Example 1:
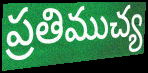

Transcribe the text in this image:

ప్రతిముచ్య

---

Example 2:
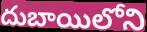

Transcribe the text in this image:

దుబాయిలోని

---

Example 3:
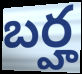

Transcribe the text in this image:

బర్హ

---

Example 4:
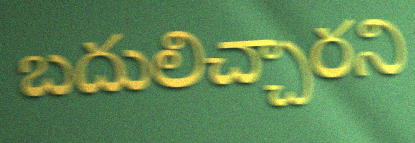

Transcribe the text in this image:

బదులిచ్చారని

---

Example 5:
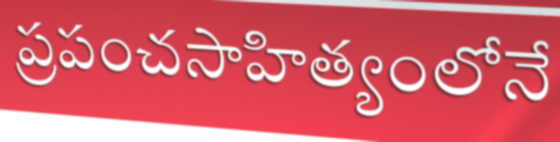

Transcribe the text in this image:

ప్రపంచసాహిత్యంలోనే